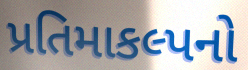
પ્રતિમાકલ્પનો